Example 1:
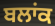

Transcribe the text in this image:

ਬਲਾਂਕ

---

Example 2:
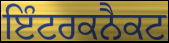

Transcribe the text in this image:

ਇੰਟਰਕਨੈਕਟ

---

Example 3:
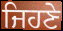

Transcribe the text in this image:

ਜਿਹਣੇ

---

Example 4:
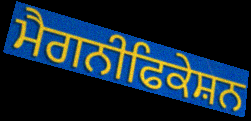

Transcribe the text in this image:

ਮੈਗਨੀਫਿਕੇਸ਼ਨ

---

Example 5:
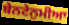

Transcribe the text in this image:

ਬੇਨਟੇਨੁਮੀਆ